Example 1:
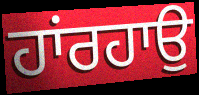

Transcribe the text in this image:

ਹਾਂਰਹਾਉ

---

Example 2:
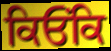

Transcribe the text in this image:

ਕਿਓਂਕਿ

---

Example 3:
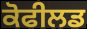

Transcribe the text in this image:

ਕੋਫੀਲਡ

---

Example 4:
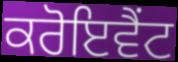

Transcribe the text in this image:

ਕਰੋਇਵੈਂਟ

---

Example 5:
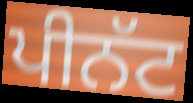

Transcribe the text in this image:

ਪੀਨੱਟ